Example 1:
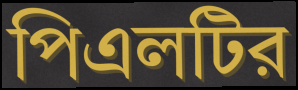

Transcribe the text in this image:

পিএলটির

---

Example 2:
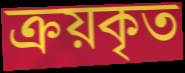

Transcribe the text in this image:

ক্রয়কৃত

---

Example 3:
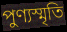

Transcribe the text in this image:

পুণ্যস্মৃতি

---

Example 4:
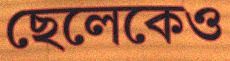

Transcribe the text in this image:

ছেলেকেও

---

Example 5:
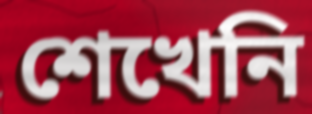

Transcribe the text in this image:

শেখেনি